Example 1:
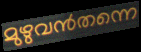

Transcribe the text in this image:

മുഴുവൻതന്നെ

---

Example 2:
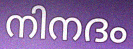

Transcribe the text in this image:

നിനദം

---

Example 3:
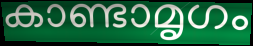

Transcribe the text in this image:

കാണ്ടാമൃഗം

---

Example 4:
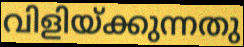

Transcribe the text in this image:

വിളിയ്ക്കുന്നതു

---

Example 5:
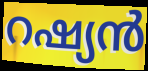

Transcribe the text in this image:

റഷ്യൻ